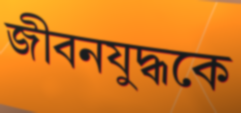
জীবনযুদ্ধকে